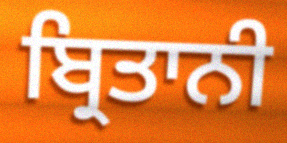
ਬ੍ਰਿਤਾਨੀ